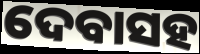
ଦେବାସହ